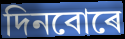
দিনবোৰে